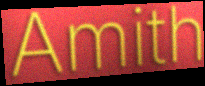
Amith